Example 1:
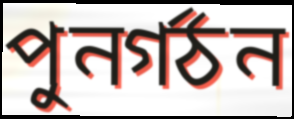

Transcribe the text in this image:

পুনর্গঠন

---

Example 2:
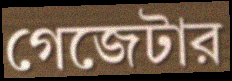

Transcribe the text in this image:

গেজেটার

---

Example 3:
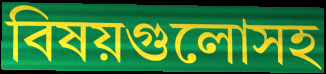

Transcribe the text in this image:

বিষয়গুলোসহ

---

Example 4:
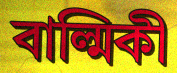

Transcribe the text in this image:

বাল্মিকী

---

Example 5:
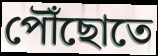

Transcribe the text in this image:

পৌঁছোতে